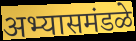
अभ्यासमंडळे